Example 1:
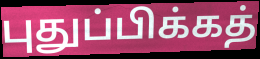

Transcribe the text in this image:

புதுப்பிக்கத்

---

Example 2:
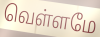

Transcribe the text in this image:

வெள்ளமே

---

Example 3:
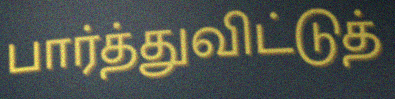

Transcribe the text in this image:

பார்த்துவிட்டுத்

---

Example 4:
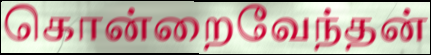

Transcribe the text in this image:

கொன்றைவேந்தன்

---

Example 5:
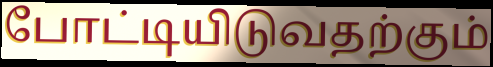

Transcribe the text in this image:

போட்டியிடுவதற்கும்